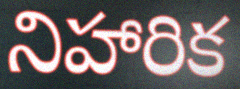
నిహారిక